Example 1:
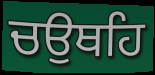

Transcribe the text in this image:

ਚਉਥਹਿ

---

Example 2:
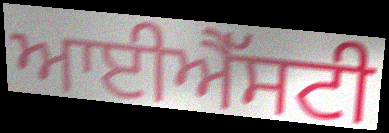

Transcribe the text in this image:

ਆਈਐੱਸਟੀ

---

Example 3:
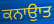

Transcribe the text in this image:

ਕਨਾਉਾਤ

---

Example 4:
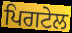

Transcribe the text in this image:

ਪਿਗਟੇਲ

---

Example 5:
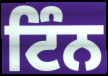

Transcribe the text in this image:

ਟਿੰਨ